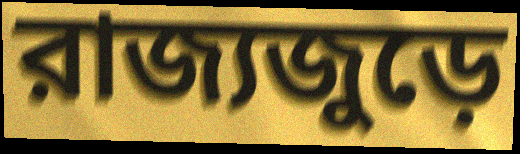
রাজ্যজুড়ে